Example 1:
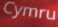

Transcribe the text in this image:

Cymru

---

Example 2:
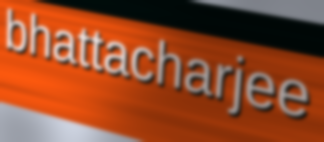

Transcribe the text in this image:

bhattacharjee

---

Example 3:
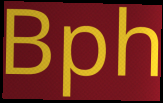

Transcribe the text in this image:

Bph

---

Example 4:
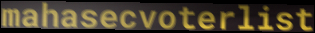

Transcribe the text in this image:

mahasecvoterlist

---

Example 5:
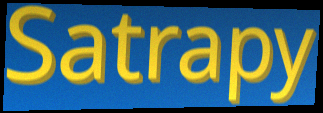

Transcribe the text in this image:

Satrapy